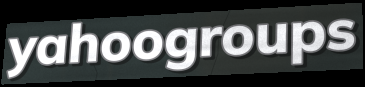
yahoogroups